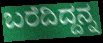
ಬರೆದಿದ್ದನ್ನ